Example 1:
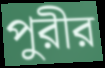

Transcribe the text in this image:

পুরীর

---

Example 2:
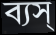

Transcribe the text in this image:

ব্যস্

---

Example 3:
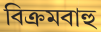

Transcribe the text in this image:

বিক্রমবাহু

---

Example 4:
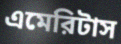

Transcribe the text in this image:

এমেরিটাস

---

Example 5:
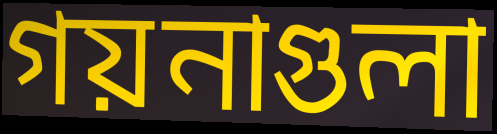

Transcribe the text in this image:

গয়নাগুলা